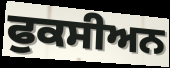
ਫੁਕਸੀਅਨ